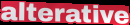
alterative